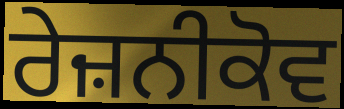
ਰੇਜ਼ਨੀਕੋਵ